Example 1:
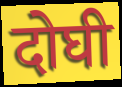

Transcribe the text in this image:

दोघी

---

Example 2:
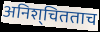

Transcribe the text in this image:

अनिश्चितताच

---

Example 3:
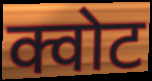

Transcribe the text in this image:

क्वोट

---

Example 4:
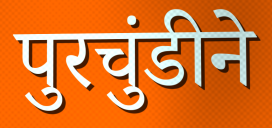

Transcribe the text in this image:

पुरचुंडीने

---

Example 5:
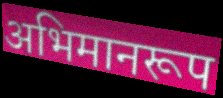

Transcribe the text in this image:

अभिमानरूप